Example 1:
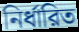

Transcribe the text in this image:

নির্ধারিত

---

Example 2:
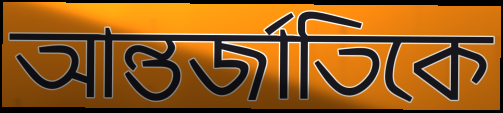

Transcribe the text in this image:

আন্তর্জাতিকে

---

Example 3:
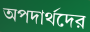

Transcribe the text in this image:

অপদার্থদের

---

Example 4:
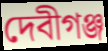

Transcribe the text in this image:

দেবীগঞ্জ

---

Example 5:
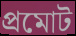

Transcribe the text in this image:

প্রমোট